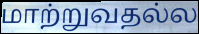
மாற்றுவதல்ல